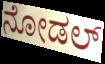
ನೋಡಲ್